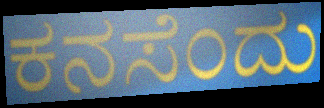
ಕನಸೆಂದು